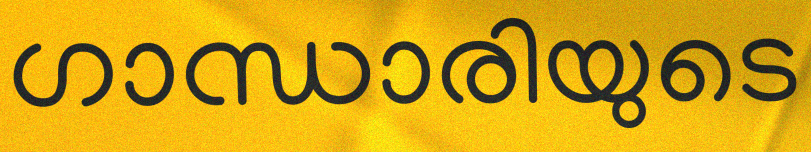
ഗാന്ധാരിയുടെ